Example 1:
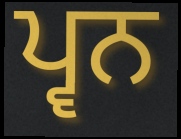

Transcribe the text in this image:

ਪ੍ਵਨ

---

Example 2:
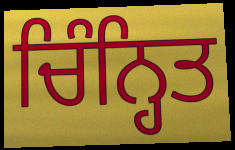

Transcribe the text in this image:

ਚਿੰਨ੍ਹਿਤ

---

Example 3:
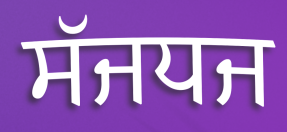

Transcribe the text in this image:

ਸੱਜਧਜ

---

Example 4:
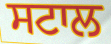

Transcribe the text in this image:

ਸਟਾਲ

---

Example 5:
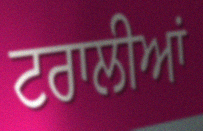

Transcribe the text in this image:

ਟਰਾਲੀਆਂ